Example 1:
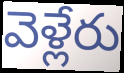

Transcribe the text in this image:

వెళ్లేరు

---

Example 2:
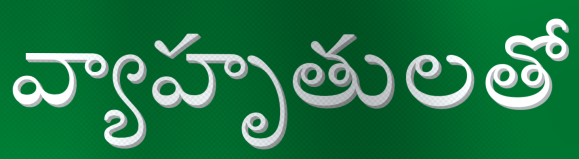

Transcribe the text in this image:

వ్యాహృతులతో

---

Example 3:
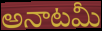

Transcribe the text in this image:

అనాటమీ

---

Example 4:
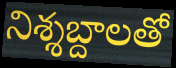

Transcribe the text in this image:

నిశ్శబ్దాలతో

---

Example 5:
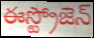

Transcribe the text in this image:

ఈస్ట్రోజెన్